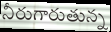
నీరుగారుతున్న